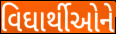
વિઘાર્થીઓને